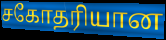
சகோதரியான